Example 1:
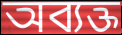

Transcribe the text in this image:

অব্যক্ত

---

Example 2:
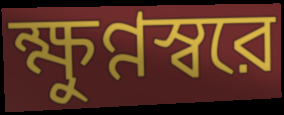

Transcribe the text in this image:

ক্ষুণ্নস্বরে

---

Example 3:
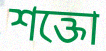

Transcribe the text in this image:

শক্তো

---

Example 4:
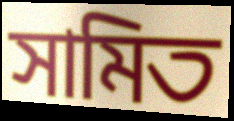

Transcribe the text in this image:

সামিত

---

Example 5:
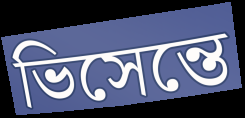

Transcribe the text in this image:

ভিসেন্তে